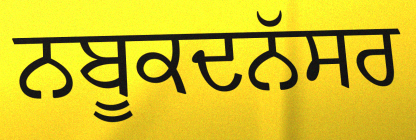
ਨਬੂਕਦਨੱਸਰ